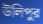
উলিপুর